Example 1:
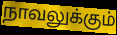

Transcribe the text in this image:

நாவலுக்கும்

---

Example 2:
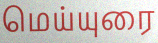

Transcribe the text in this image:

மெய்யுரை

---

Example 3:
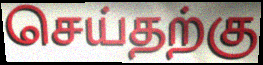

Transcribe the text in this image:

செய்தற்கு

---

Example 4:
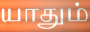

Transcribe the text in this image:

யாதும்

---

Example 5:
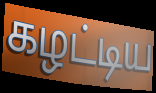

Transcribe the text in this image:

கழட்டிய